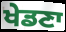
ਖੇਡਣਾ